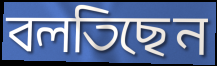
বলতিছেন